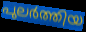
പുലർത്തിയ